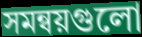
সমন্বয়গুলো